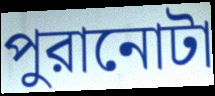
পুরানোটা